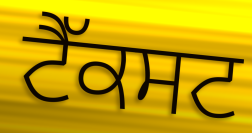
ਟੈੱਕਸਟ